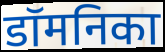
डॉमनिका